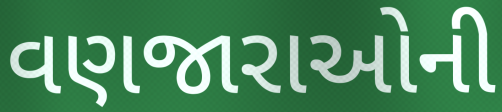
વણજારાઓની